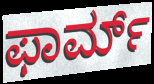
ಫಾರ್ಮ್